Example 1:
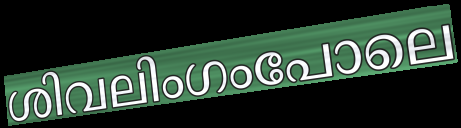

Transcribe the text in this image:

ശിവലിംഗംപോലെ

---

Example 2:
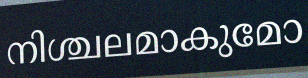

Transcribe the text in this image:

നിശ്ചലമാകുമോ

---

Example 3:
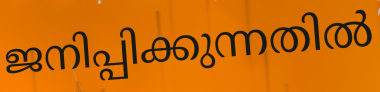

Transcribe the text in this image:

ജനിപ്പിക്കുന്നതിൽ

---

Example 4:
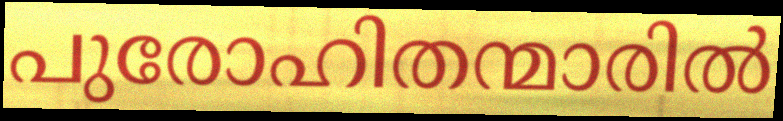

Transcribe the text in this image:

പുരോഹിതന്മാരിൽ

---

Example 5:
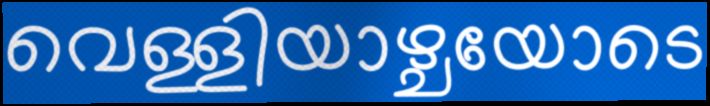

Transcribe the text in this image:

വെള്ളിയാഴ്ചയോടെ